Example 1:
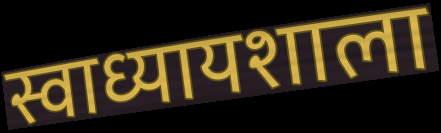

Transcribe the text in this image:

स्वाध्यायशाला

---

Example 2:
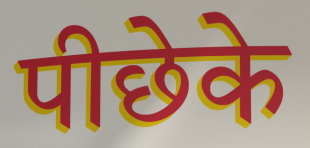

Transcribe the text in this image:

पीछेके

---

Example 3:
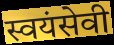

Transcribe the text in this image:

स्वयंसेवी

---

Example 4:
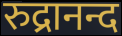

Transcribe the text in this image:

रुद्रानन्द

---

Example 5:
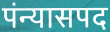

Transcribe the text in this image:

पंन्यासपद